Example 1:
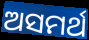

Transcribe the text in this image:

ଅସମର୍ଥ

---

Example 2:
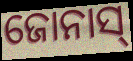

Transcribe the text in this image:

ଜୋନାସ୍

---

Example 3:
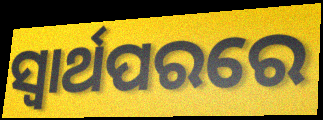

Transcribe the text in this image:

ସ୍ୱାର୍ଥପରରେ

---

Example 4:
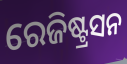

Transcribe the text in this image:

ରେଜିଷ୍ଟ୍ରସନ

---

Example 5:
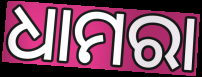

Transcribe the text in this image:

ଧାମରା